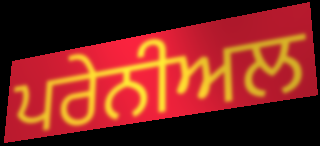
ਪਰੇਨੀਅਲ